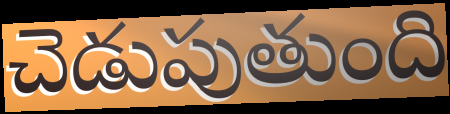
చెడుపుతుంది